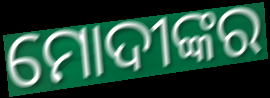
ମୋଦୀଙ୍କର